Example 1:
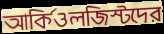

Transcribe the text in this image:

আর্কিওলজিস্টদের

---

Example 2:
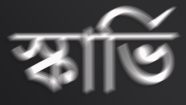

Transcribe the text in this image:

স্কার্ভি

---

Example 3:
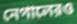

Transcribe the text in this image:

নেপালেরও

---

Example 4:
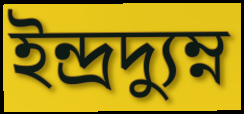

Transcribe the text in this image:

ইন্দ্রদ্যুম্ন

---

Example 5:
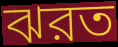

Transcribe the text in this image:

ঝরত